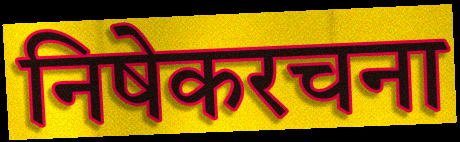
निषेकरचना